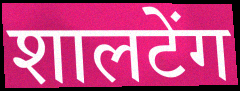
शालटेंग